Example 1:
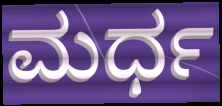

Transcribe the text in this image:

ಮರ್ಧ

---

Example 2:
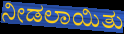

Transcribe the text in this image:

ನೀಡಲಾಯಿತು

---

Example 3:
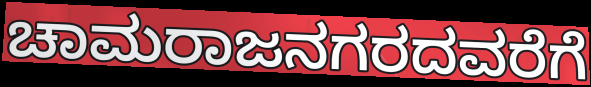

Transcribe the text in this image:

ಚಾಮರಾಜನಗರದವರೆಗೆ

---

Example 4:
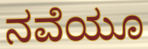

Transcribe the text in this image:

ನವೆಯೂ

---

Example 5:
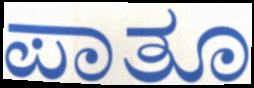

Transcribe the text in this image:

ಪಾತೂ